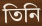
তিনি